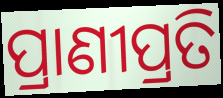
ପ୍ରାଣୀପ୍ରତି